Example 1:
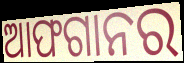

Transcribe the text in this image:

ଆଫଗାନର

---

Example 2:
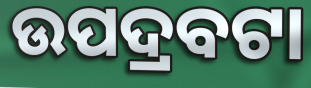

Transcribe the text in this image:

ଉପଦ୍ରବଟା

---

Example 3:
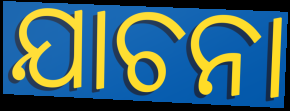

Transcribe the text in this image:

ଯାଚନା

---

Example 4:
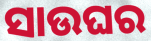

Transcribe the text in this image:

ସାଉଘର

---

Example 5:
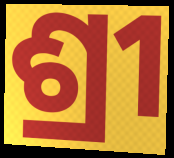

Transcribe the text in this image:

ଶ୍ରୀ